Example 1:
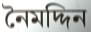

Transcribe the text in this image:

নৈমদ্দিন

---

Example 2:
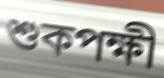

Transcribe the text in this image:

শুকপক্ষী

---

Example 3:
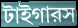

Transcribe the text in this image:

টাইগারস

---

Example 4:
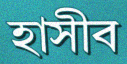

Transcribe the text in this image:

হাসীব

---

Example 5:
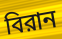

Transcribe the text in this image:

বিরান